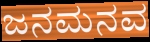
ಜನಮನವ